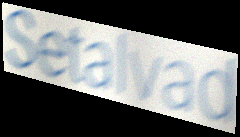
Setalvad